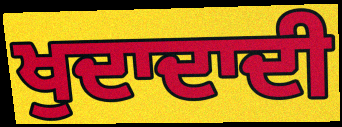
ਖੁਦਾਦਾਦੀ